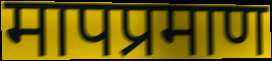
मापप्रमाण